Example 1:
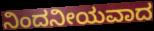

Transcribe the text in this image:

ನಿಂದನೀಯವಾದ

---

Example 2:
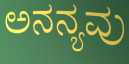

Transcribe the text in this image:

ಅನನ್ಯವು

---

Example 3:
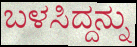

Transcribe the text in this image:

ಬಳಸಿದ್ದನ್ನು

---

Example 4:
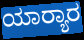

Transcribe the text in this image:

ಯಾರ‍್ಯಾರ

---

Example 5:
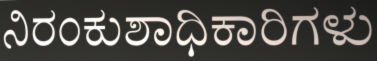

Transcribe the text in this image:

ನಿರಂಕುಶಾಧಿಕಾರಿಗಳು